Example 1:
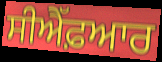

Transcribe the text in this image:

ਸੀਐੱਫ਼ਆਰ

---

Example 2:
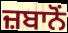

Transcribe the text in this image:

ਜ਼ਬਾਨੋਂ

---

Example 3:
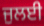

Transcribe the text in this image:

ਜੁਲਈ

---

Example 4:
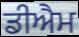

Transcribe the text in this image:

ਡੀਐਮ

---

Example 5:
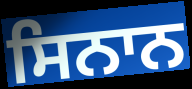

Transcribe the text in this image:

ਸਿਨਾਨ